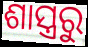
ଶାସ୍ତ୍ରରୁ